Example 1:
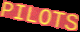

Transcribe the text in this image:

PILOTS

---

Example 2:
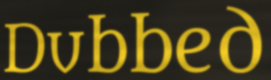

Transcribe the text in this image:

Dubbed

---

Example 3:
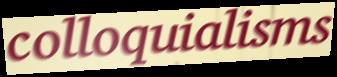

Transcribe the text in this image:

colloquialisms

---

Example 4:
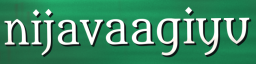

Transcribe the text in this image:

nijavaagiyu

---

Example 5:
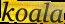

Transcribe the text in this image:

koala